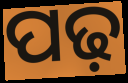
ପଢ଼